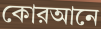
কোরআনে